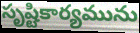
సృష్టికార్యమును